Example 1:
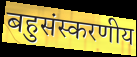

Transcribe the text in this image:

बहुसंस्करणीय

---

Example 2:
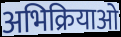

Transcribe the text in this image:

अभिक्रियाओ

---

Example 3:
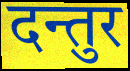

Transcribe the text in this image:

दन्तुर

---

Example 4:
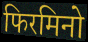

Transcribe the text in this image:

फिरमिनो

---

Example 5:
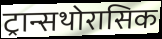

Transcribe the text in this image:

ट्रान्सथोरासिक